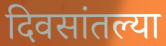
दिवसांतल्या